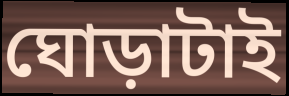
ঘোড়াটাই